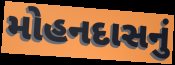
મોહનદાસનું